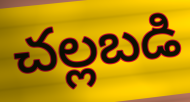
చల్లబడి